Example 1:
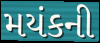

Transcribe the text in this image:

મયંકની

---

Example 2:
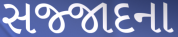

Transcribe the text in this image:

સજ્જાદના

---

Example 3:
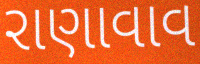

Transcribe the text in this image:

રાણાવાવ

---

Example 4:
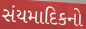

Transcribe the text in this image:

સંયમાદિકનો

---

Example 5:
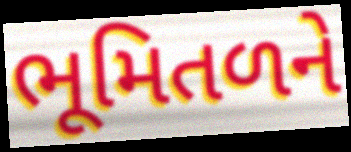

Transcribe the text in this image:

ભૂમિતળને